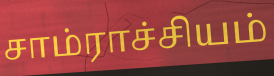
சாம்ராச்சியம்